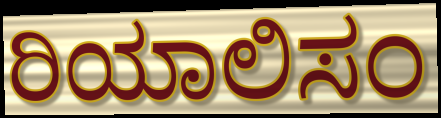
ರಿಯಾಲಿಸಂ